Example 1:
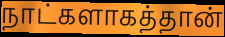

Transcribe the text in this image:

நாட்களாகத்தான்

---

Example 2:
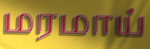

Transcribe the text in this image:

மரமாய்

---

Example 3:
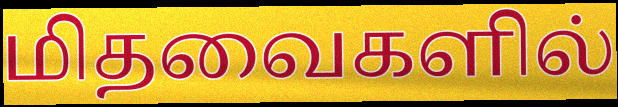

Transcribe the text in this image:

மிதவைகளில்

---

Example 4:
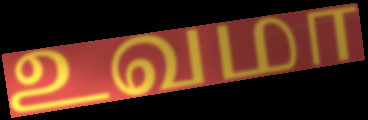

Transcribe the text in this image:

உவமா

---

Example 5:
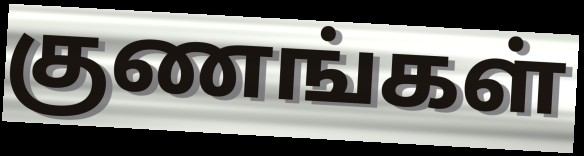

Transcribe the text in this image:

குணங்கள்